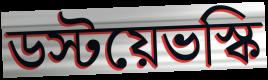
ডস্টয়েভস্কি